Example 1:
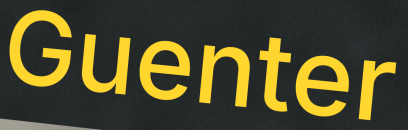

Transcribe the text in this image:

Guenter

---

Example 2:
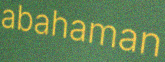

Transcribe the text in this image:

abahaman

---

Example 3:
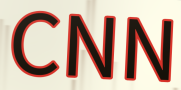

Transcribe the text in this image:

CNN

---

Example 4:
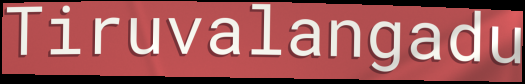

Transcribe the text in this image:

Tiruvalangadu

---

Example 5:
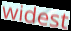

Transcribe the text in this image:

widest